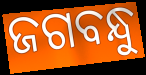
ଜଗବନ୍ଧୁ